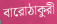
বারোঠাকুরী